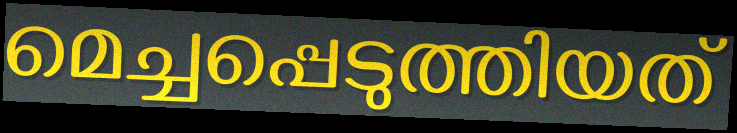
മെച്ചപ്പെടുത്തിയത്